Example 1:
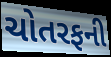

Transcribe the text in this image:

ચોતરફની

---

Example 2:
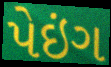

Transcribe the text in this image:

પેઇંગ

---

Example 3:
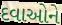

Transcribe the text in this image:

દવાઓને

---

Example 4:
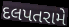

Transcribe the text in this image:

દલપતરામે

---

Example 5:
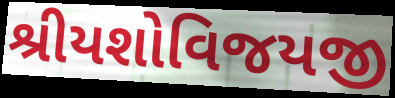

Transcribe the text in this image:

શ્રીયશોવિજયજી